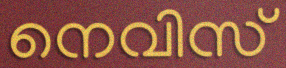
നെവിസ്